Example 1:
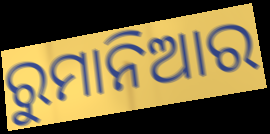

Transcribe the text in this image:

ରୁମାନିଆର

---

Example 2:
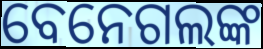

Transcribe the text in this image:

ବେନେଗଲଙ୍କ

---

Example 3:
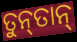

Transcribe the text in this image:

ତୁନ୍‍ତାନ୍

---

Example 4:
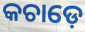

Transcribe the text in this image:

କଚାଡ଼େ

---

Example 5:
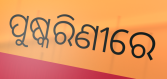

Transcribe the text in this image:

ପୁଷ୍କରିଣୀରେ